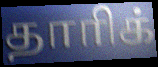
தாரிக்